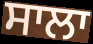
ਸਾਲਾ